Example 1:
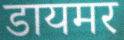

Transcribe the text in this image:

डायमर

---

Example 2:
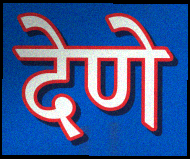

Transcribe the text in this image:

देणे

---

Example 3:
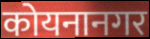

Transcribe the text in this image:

कोयनानगर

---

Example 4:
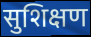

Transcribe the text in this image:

सुशिक्षण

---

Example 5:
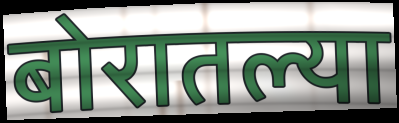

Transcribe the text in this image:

बोरातल्या